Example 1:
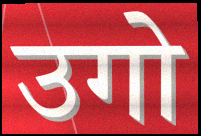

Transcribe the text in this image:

उगो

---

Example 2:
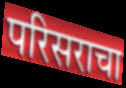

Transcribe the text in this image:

परिसराचा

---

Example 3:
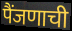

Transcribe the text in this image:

पैंजणाची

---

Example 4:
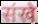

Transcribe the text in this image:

संखे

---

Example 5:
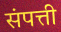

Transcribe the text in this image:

संपत्ती